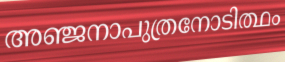
അഞ്ജനാപുത്രനോടിത്ഥം